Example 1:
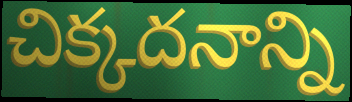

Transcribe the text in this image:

చిక్కదనాన్ని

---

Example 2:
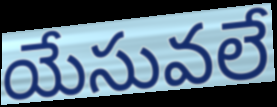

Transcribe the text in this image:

యేసువలే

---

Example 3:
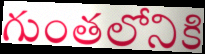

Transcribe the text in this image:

గుంతలోనికి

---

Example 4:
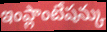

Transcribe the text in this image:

ఇంప్లాంటేషన్కు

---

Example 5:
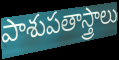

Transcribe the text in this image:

పాశుపతాస్త్రాలు